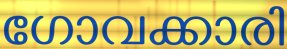
ഗോവക്കാരി